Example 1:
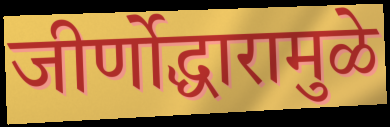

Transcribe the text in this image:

जीर्णोद्धारामुळे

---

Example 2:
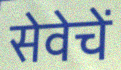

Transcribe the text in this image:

सेवेचें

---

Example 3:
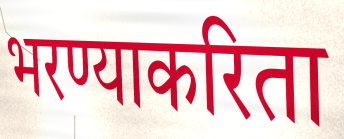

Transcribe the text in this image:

भरण्याकरिता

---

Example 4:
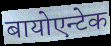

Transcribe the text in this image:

बायोएन्टेक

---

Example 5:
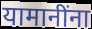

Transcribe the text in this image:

यामानींना